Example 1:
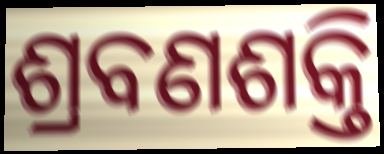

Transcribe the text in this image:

ଶ୍ରବଣଶକ୍ତି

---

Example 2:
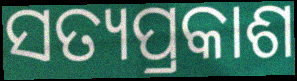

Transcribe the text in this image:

ସତ୍ୟପ୍ରକାଶ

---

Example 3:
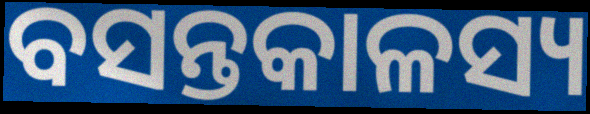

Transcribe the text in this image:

ବସନ୍ତକାଳସ୍ୟ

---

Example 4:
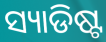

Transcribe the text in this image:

ସ୍ୟାଡିଷ୍ଟ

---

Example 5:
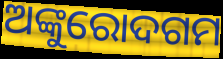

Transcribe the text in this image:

ଅଙ୍କୁରୋଦଗମ